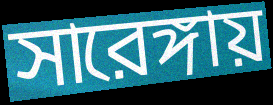
সারেঙ্গায়